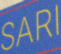
SARI